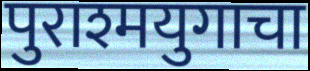
पुराश्मयुगाचा